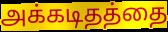
அக்கடிதத்தை